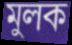
মুলক